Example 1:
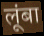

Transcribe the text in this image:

लूंबा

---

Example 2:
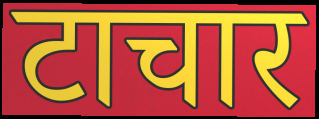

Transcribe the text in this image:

टाचार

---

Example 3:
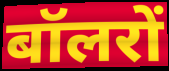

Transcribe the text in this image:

बॉलरों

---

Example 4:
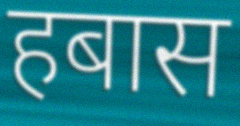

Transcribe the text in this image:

हबास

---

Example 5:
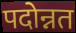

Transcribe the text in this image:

पदोन्नत